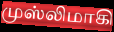
முஸ்லிமாகி